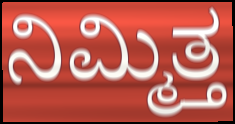
ನಿಮ್ಮಿತ್ತ